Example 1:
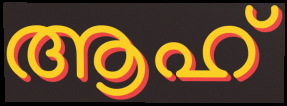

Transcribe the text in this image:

ആഹ്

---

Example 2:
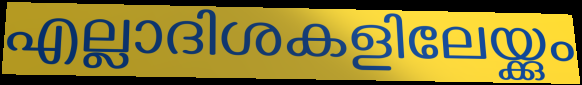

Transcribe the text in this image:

എല്ലാദിശകളിലേയ്ക്കും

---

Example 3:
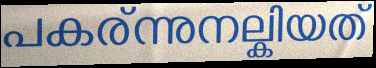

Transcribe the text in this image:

പകര്ന്നുനല്കിയത്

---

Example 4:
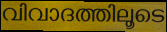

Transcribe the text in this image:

വിവാദത്തിലൂടെ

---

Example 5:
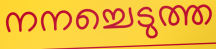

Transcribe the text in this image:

നനച്ചെടുത്ത